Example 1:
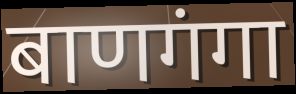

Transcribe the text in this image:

बाणगंगा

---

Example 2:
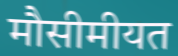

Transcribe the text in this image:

मौसीमीयत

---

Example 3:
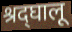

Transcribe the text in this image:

श्रद्घालू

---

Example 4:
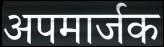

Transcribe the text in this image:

अपमार्जक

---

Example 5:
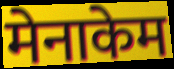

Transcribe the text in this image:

मेनाकेम